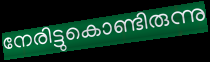
നേരിട്ടുകൊണ്ടിരുന്നു